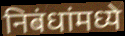
निबंधांमध्ये